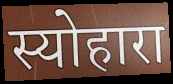
स्योहारा